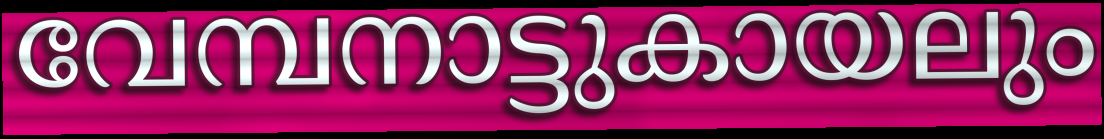
വേമ്പനാട്ടുകായലും